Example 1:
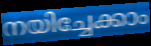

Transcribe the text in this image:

നയിച്ചേക്കാം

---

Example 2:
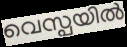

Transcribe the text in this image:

വെസ്പയിൽ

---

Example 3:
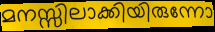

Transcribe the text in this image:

മനസ്സിലാക്കിയിരുന്നോ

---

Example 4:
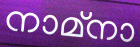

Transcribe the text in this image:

നാമ്നാ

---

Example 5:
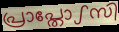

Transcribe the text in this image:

പ്രാപ്തോഽസി